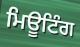
ਮਿਊਟਿੰਗ